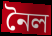
নৈল